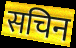
सचिन